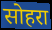
सोहरा